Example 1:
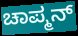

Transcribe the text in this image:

ಚಾಪ್ಮನ್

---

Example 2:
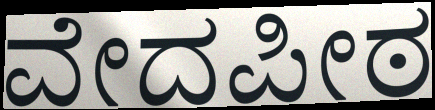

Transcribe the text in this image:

ವೇದಪೀಠ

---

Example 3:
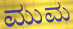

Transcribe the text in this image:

ಮುಮ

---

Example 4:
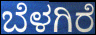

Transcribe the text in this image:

ಬೆಳಗಿರೆ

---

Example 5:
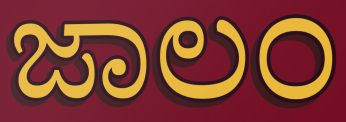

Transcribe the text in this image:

ಜಾಲಂ